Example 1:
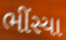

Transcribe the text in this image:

ભીંસ્યા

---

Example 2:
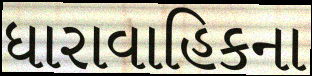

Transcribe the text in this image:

ધારાવાહિકના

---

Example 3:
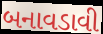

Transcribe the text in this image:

બનાવડાવી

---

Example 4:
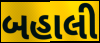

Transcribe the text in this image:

બહાલી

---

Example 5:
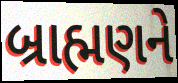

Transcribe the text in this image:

બ્રાહ્મણને